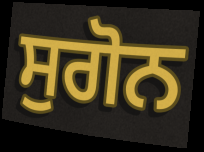
ਸੁਗੋਨ